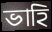
ভাহি